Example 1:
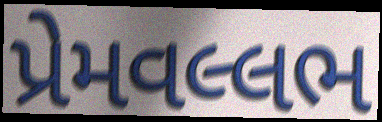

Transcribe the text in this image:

પ્રેમવલ્લભ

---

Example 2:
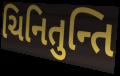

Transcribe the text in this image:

ચિનિતુન્તિ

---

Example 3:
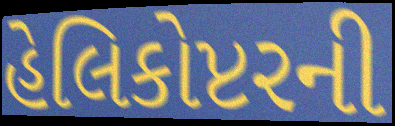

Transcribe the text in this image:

હેલિકોપ્ટરની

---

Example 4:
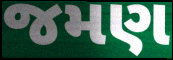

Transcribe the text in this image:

જમણ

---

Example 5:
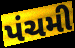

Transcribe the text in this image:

પંચમી